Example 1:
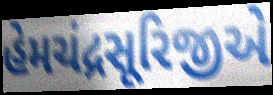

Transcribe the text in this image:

હેમચંદ્રસૂરિજીએ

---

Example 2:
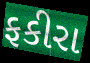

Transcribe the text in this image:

ફકીરા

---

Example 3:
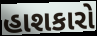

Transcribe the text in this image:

હાશકારો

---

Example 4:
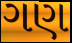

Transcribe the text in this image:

ગણ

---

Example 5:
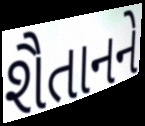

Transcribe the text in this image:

શૈતાનને